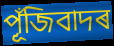
পূঁজিবাদৰ